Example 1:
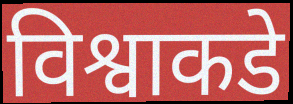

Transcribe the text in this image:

विश्वाकडे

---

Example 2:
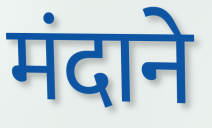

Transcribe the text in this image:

मंदाने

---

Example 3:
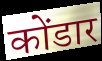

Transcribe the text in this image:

कोंडार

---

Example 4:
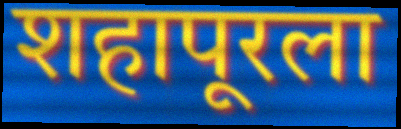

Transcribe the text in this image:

शहापूरला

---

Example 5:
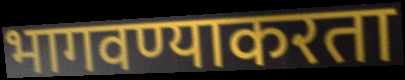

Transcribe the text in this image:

भागवण्याकरता